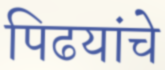
पिढयांचे